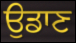
ਉਡਾਣ